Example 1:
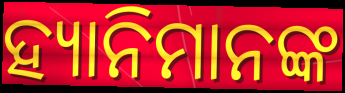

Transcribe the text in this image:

ହ୍ୟାନିମାନଙ୍କ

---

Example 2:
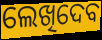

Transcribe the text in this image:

ଲେଖିଦେବ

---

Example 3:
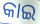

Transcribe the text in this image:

କାଇ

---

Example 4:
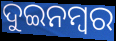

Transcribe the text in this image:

ଦୁଇନମ୍ୱର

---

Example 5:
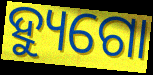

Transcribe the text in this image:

ହ୍ୟୁଗୋ